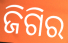
ଜିଗିର